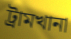
ট্রামখানা